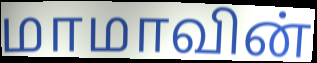
மாமாவின்